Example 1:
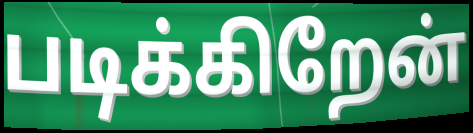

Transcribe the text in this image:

படிக்கிறேன்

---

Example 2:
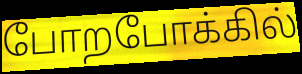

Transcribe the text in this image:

போறபோக்கில்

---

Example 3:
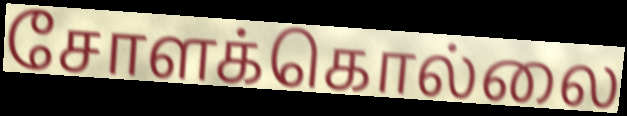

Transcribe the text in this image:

சோளக்கொல்லை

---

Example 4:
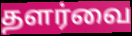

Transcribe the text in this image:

தளர்வை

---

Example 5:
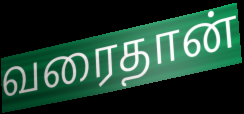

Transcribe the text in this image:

வரைதான்